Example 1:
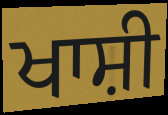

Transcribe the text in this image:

ਖਾਸ਼ੀ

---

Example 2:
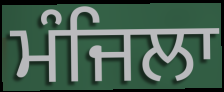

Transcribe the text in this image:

ਮੰਜਿਲਾ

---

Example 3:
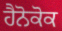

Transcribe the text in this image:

ਹੈਨੋਕੋਕ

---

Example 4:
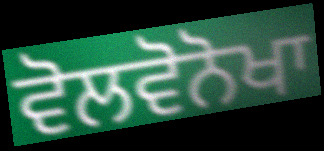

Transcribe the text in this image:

ਵੋਲਵੋਨੋਖਾ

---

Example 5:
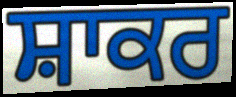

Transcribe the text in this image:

ਸ਼ਾਕਰ